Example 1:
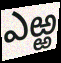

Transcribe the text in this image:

ఎఱ్ఱ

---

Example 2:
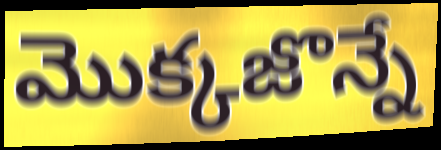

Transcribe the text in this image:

మొక్కజొన్నే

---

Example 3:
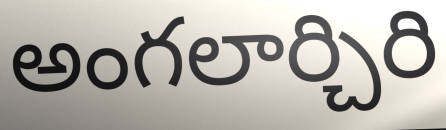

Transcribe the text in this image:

అంగలార్చిరి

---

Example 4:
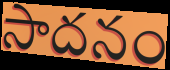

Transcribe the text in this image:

సాదనం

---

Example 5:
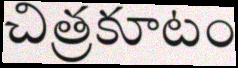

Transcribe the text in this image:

చిత్రకూటం